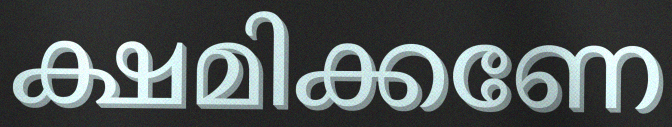
ക്ഷമിക്കണേ